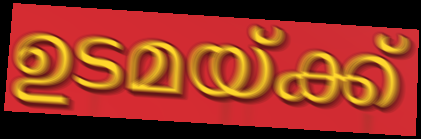
ഉടമയ്ക്ക്